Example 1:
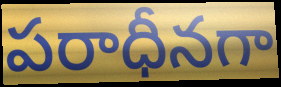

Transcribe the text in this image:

పరాధీనగా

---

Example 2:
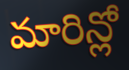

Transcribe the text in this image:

మారిన్లో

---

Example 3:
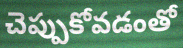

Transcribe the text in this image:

చెప్పుకోవడంతో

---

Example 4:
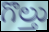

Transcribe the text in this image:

గొల్తు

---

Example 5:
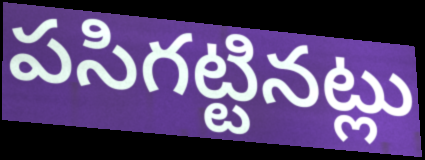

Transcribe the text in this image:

పసిగట్టినట్లు